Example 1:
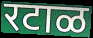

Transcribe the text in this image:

रटाळ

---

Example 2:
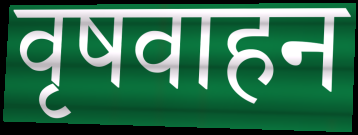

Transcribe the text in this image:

वृषवाहन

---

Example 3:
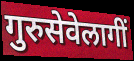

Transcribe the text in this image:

गुरुसेवेलागीं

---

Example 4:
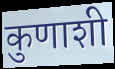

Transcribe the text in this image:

कुणाशी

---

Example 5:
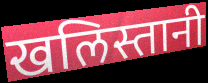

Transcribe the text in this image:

खलिस्तानी